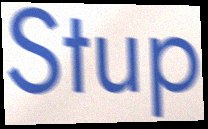
Stup